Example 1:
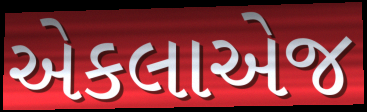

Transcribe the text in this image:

એકલાએજ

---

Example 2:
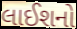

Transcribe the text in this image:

લાઈશનો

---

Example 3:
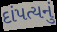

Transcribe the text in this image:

દાંપત્યનું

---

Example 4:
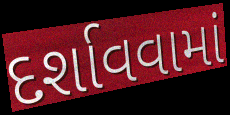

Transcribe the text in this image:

દર્શાવવામાં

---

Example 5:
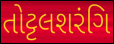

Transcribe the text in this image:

તોટ્ટલશરંગિ